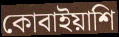
কোবাইয়াশি